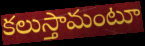
కలుస్తామంటూ